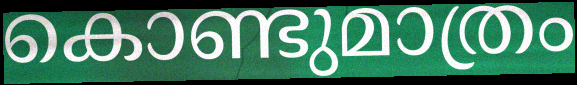
കൊണ്ടുമാത്രം